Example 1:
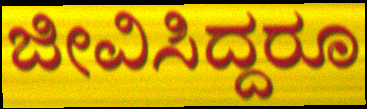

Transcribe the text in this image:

ಜೀವಿಸಿದ್ದರೂ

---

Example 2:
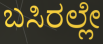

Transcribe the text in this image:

ಬಸಿರಲ್ಲೇ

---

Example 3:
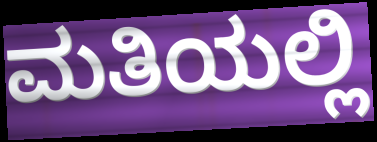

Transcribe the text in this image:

ಮತಿಯಲ್ಲಿ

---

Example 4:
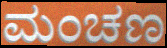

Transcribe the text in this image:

ಮಂಚಣ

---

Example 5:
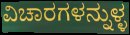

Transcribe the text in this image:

ವಿಚಾರಗಳನ್ನುಳ್ಳ